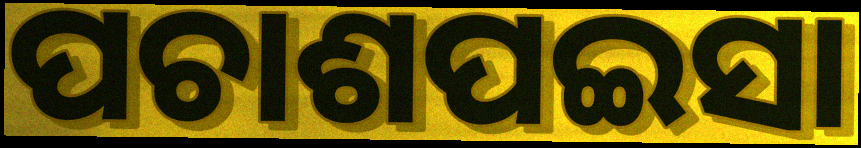
ପଚାଶପଇସା